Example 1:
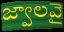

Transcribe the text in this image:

జ్వాలవై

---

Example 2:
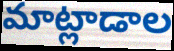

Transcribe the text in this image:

మాట్లాడాల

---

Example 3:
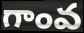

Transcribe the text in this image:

గాంవ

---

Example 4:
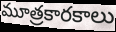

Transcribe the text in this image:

మూత్రకారకాలు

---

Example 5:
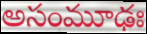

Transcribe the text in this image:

అసంమూఢః